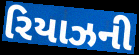
રિયાઝની